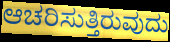
ಆಚರಿಸುತ್ತಿರುವುದು